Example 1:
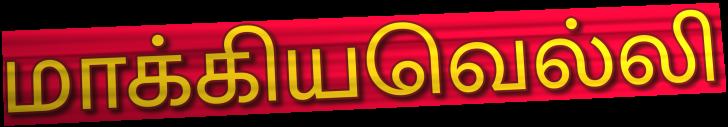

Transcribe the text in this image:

மாக்கியவெல்லி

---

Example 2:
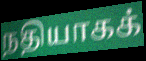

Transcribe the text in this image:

நதியாகக்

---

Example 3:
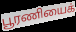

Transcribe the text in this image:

பூரணியைக்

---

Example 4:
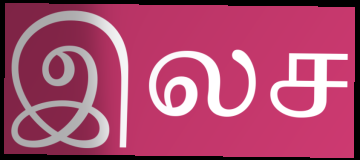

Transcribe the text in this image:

இலச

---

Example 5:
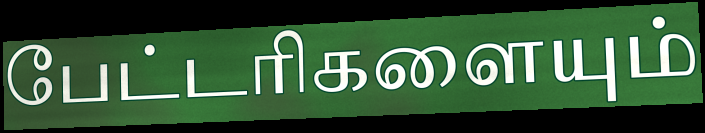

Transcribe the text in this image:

பேட்டரிகளையும்